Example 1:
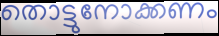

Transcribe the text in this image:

തൊട്ടുനോക്കണം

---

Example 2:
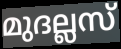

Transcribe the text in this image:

മുദല്ലസ്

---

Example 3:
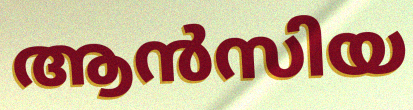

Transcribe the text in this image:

ആൻസിയ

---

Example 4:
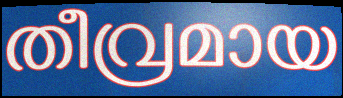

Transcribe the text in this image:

തീവ്രമായ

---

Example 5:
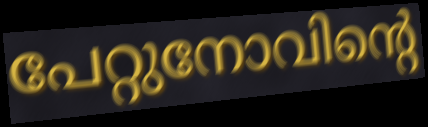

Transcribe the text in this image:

പേറ്റുനോവിന്റെ